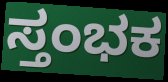
ಸ್ತಂಭಕ